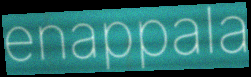
enappala